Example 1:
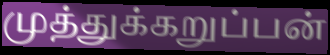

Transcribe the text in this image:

முத்துக்கறுப்பன்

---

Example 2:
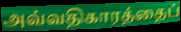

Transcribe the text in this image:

அவ்வதிகாரத்தைப்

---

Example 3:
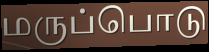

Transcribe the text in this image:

மருப்பொடு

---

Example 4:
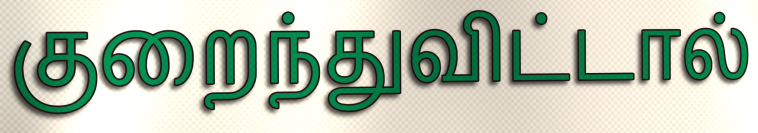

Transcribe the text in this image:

குறைந்துவிட்டால்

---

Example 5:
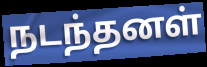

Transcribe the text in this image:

நடந்தனள்